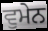
ਵੁਮੇਨ